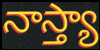
నాస్త్యా